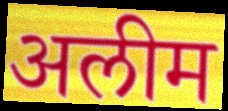
अलीम